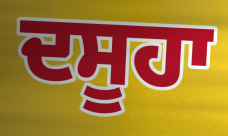
ਦਸੂਹਾ